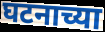
घटनाच्या